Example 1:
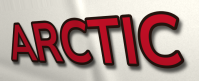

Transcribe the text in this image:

ARCTIC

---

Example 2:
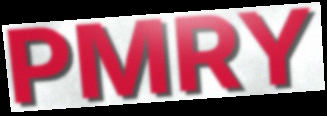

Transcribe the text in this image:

PMRY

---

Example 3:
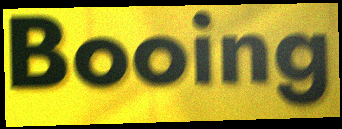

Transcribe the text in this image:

Booing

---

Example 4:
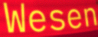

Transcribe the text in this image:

Wesen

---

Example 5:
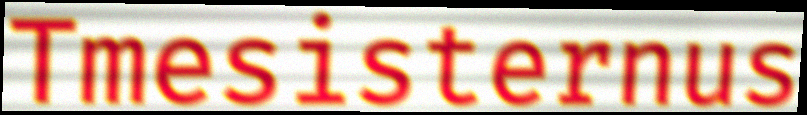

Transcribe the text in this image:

Tmesisternus